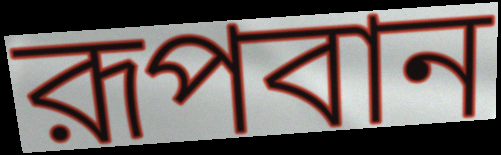
রূপবান